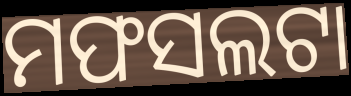
ମଫସଲଟା